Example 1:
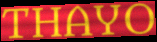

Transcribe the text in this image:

THAYO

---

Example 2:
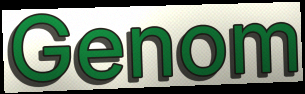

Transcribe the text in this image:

Genom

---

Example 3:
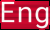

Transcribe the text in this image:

Eng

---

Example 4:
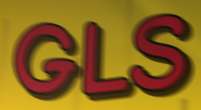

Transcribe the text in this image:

GLS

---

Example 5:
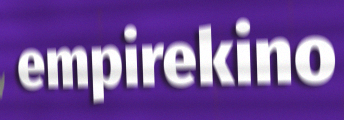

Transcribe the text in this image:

empirekino